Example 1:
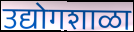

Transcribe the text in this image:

उद्योगशाळा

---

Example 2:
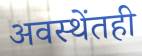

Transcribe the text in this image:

अवस्थेंतही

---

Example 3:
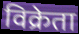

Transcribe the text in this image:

विक्रेता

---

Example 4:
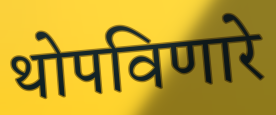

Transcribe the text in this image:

थोपविणारे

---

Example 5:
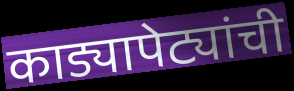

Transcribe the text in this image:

काड्यापेट्यांची